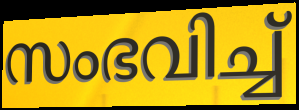
സംഭവിച്ച്